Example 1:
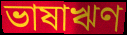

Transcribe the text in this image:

ভাষাঋণ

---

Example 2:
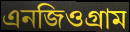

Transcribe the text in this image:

এনজিওগ্রাম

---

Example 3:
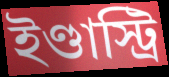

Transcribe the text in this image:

ইণ্ডাস্ট্রি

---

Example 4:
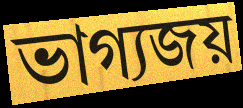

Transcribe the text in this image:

ভাগ্যজয়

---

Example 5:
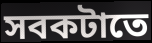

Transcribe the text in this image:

সবকটাতে